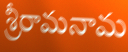
శ్రీరామనామ